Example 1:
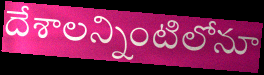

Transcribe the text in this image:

దేశాలన్నింటిలోనూ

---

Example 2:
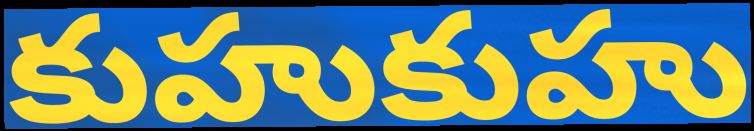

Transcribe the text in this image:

కుహుకుహు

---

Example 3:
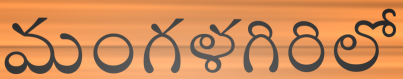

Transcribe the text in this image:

మంగళగిరిలో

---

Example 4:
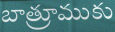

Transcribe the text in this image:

బాత్రూముకు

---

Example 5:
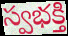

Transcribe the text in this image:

స్వభక్తి